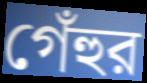
গেঁহুর